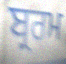
ਬ੍ਰਰਮ